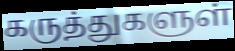
கருத்துகளுள்